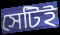
সেটিই